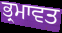
ਭ੍ਰਮਾਵਤ